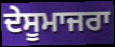
ਦੇਸੂਮਾਜਰਾ